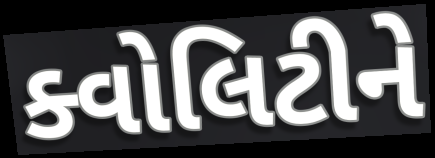
ક્વોલિટીને